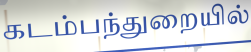
கடம்பந்துறையில்